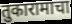
तुकारामाचा